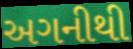
અગનીથી